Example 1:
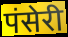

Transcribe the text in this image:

पंसेरी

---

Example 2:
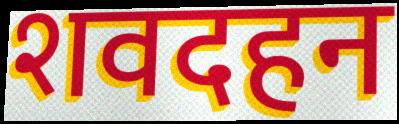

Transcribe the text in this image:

शवदहन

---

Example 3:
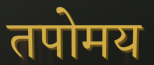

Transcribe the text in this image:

तपोमय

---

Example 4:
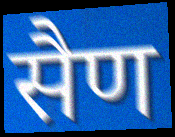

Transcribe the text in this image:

सैण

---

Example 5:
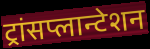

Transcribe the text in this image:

ट्रांसप्लान्टेशन